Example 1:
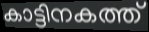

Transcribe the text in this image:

കാട്ടിനകത്ത്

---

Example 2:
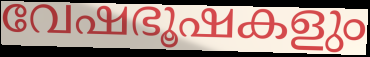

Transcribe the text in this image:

വേഷഭൂഷകളും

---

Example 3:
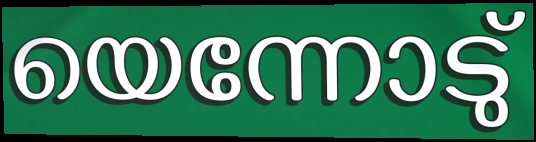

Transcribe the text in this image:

യെന്നോടു്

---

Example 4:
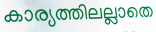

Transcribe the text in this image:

കാര്യത്തിലല്ലാതെ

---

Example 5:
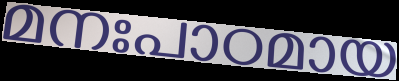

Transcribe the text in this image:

മനഃപാഠമായ